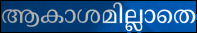
ആകാശമില്ലാതെ